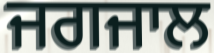
ਜਗਜਾਲ